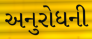
અનુરોધની